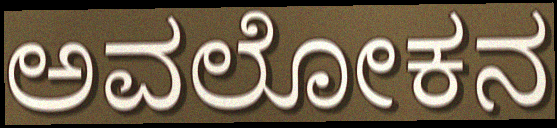
ಅವಲೋಕನ